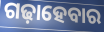
ଗଢ଼ାହେବାର